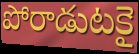
పోరాడుటకై